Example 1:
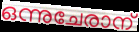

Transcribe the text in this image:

ഒന്നുചേരാന്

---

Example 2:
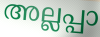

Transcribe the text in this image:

അല്ലപ്പാ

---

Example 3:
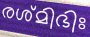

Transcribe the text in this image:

രശ്മിഭിഃ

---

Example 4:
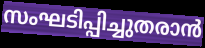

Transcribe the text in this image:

സംഘടിപ്പിച്ചുതരാൻ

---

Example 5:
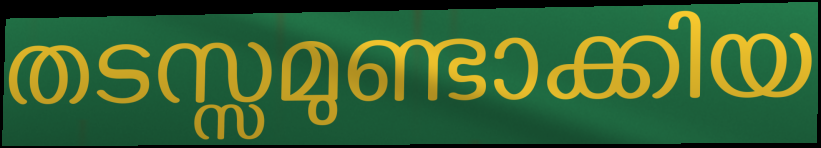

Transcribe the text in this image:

തടസ്സമുണ്ടാക്കിയ